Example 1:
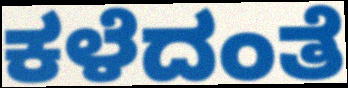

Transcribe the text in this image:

ಕಳೆದಂತೆ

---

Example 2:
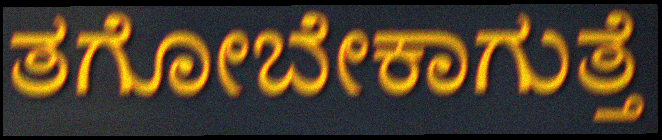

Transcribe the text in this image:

ತಗೋಬೇಕಾಗುತ್ತೆ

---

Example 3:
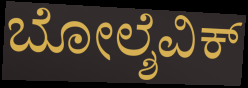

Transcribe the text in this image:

ಬೋಲ್ಶೆವಿಕ್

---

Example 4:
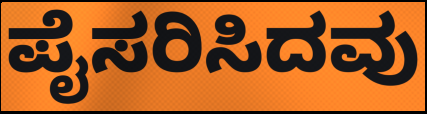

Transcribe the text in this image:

ಪೈಸರಿಸಿದವು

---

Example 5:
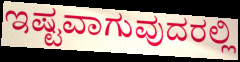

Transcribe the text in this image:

ಇಷ್ಟವಾಗುವುದರಲ್ಲಿ